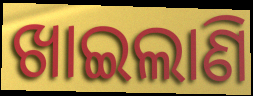
ଖାଇଲାଣି